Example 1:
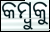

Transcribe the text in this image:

କମ୍ବୁକୁ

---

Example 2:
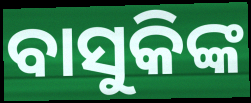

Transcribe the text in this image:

ବାସୁକିଙ୍କ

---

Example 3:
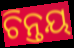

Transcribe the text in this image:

ଚିନ୍ତୟ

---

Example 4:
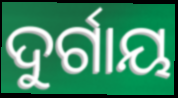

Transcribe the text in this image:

ଦୁର୍ଗାୟ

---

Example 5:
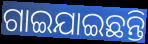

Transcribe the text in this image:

ଗାଇଯାଇଛନ୍ତି